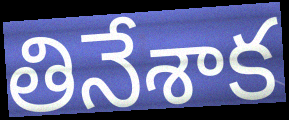
తినేశాక